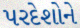
પરદેશોને